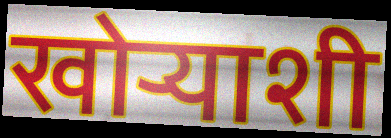
खोऱ्याशी